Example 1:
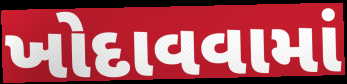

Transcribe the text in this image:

ખોદાવવામાં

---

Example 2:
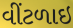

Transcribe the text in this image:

વીંટળાઇ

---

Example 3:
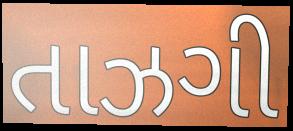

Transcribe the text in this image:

તાઝગી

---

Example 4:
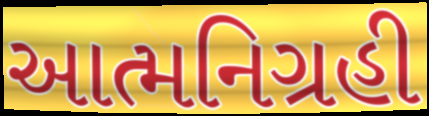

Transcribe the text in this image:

આત્મનિગ્રહી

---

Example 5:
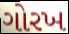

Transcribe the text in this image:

ગોરખ